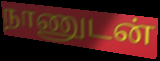
நாணுடன்